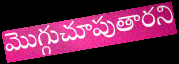
మొగ్గుచూపుతారని